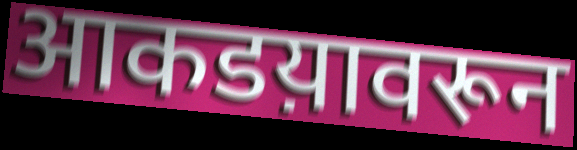
आकडय़ावरून